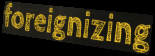
foreignizing